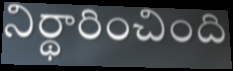
నిర్థారించింది